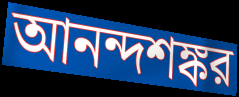
আনন্দশঙ্কর